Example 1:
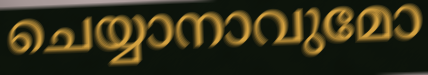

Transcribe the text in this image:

ചെയ്യാനാവുമോ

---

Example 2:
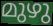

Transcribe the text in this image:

മുഴു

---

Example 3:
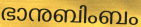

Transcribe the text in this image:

ഭാനുബിംബം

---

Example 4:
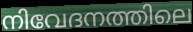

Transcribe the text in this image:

നിവേദനത്തിലെ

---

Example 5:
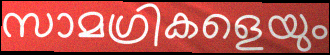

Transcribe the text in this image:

സാമഗ്രികളെയും